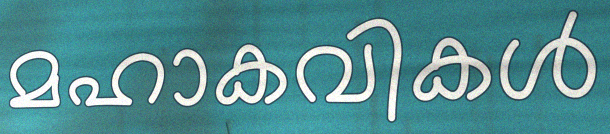
മഹാകവികൾ